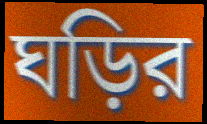
ঘড়ির